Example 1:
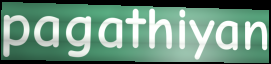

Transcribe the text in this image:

pagathiyan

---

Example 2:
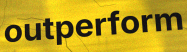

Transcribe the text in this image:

outperform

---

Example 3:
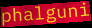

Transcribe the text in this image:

phalguni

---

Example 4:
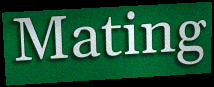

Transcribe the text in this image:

Mating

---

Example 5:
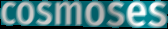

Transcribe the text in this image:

cosmoses